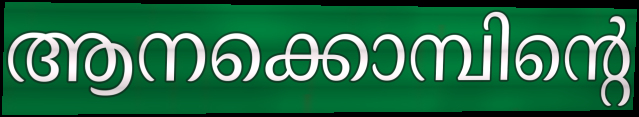
ആനക്കൊമ്പിന്റെ